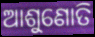
ଆଶୁଣୋତି